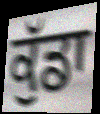
ਕੁੱਡਾ